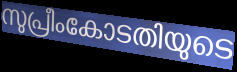
സുപ്രീംകോടതിയുടെ